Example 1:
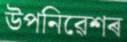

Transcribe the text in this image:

উপনিৱেশৰ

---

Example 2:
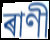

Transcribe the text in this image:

ৰাণী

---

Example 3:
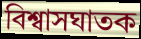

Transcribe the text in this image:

বিশ্বাসঘাতক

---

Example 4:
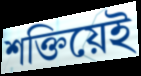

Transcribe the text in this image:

শক্তিয়েই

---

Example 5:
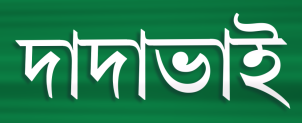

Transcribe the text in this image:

দাদাভাই